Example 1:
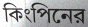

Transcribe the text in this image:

কিংপিনের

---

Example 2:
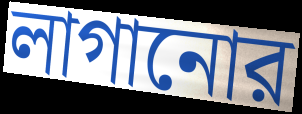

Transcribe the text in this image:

লাগানোর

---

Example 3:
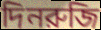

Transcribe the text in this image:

দিনরুজি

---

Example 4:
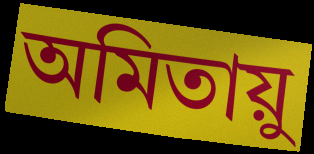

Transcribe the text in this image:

অমিতায়ু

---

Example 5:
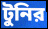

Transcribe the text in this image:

টুনির